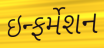
ઇન્ફર્મેશન